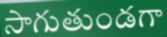
సాగుతుండగా